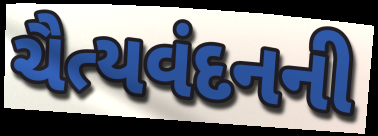
ચૈત્યવંદનની